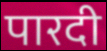
पारदी